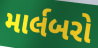
માર્લબરો